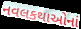
નવલકથાઓનાં